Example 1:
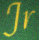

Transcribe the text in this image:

Jr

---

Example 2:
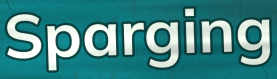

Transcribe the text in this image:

Sparging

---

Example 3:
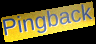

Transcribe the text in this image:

Pingback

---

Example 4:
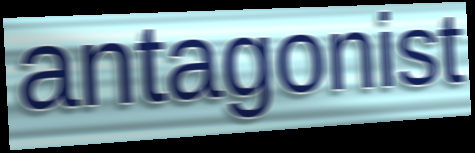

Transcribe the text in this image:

antagonist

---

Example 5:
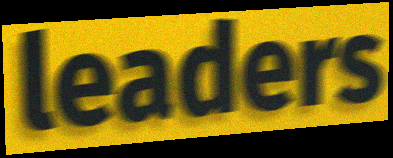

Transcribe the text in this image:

leaders